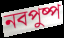
নবপুষ্প